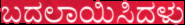
ಬದಲಾಯಿಸಿದಳು